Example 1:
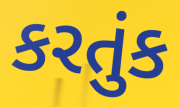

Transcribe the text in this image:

કરતુંક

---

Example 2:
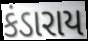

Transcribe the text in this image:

કંડારાય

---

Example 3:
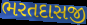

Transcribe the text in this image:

ભરતદાસજી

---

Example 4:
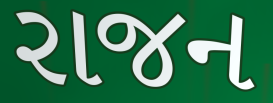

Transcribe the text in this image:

રાજન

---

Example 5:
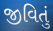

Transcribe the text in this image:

જીવિતું